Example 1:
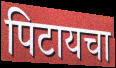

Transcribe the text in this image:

पिटायचा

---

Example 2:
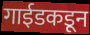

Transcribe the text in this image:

गाईडकडून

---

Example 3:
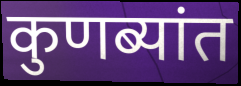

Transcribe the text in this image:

कुणब्यांत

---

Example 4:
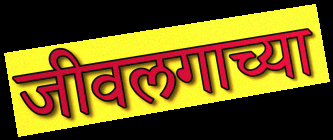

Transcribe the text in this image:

जीवलगाच्या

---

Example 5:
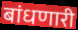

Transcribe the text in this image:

बांधणारी